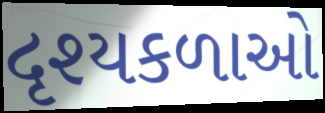
દૃશ્યકળાઓ